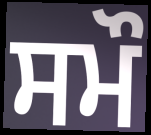
ਸਮੌ